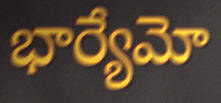
భార్యేమో